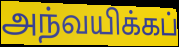
அந்வயிக்கப்